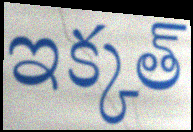
ఇక్కత్